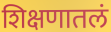
शिक्षणातलं